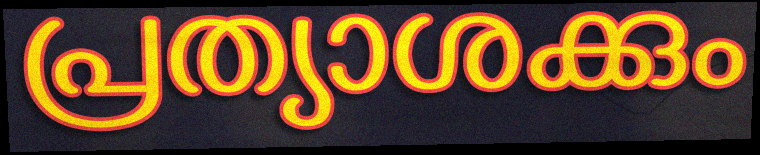
പ്രത്യാശക്കും